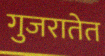
गुजरातेत